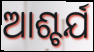
ଆଶ୍ଚର୍ଯ